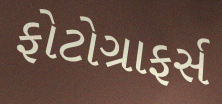
ફોટોગ્રાફર્સ